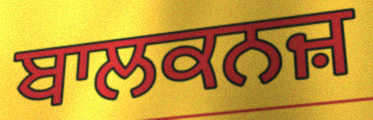
ਬਾਲਕਨਜ਼